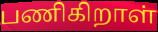
பணிகிறாள்